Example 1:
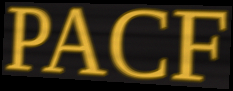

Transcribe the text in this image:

PACF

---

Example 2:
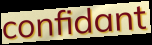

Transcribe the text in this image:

confidant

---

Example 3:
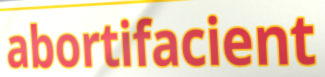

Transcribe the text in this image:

abortifacient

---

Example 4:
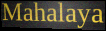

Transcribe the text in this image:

Mahalaya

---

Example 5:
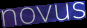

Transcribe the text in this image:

novus